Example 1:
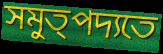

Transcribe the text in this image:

সমুত্পদ্যতে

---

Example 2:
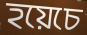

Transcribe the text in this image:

হয়েচে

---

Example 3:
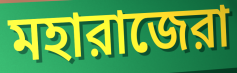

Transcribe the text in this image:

মহারাজেরা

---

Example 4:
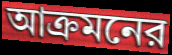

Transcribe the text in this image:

আক্রমনের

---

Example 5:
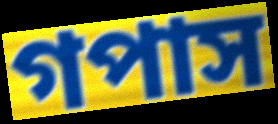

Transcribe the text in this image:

গপাস